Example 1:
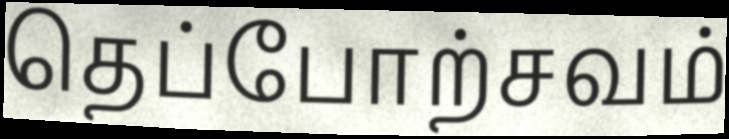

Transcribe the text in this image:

தெப்போற்சவம்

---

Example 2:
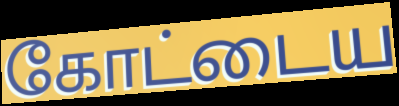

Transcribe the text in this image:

கோட்டைய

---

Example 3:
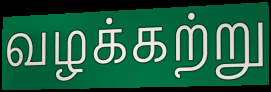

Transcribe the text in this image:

வழக்கற்று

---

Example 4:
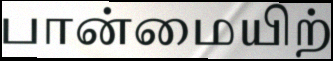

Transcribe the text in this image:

பான்மையிற்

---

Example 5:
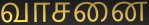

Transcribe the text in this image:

வாசனை